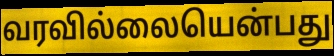
வரவில்லையென்பது